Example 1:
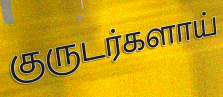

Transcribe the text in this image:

குருடர்களாய்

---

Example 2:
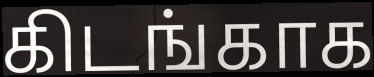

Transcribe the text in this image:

கிடங்காக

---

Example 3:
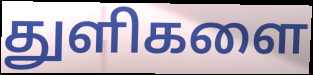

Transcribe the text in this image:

துளிகளை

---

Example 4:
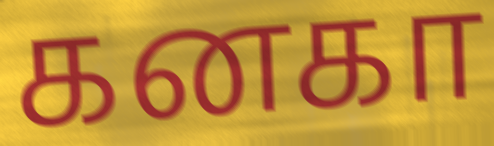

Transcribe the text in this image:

கனகா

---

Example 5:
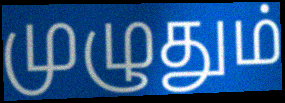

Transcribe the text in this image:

முழுதும்